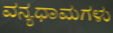
ವನ್ಯಧಾಮಗಳು